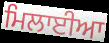
ਮਿਲਾਈਆ